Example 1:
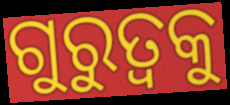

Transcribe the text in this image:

ଗୁରୁତ୍ବକୁ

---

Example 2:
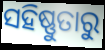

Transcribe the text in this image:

ସହିଷ୍ଣୁତାରୁ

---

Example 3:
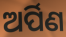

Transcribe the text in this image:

ଅର୍ପିଣ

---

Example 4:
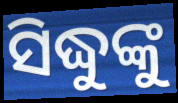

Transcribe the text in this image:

ସିଦ୍ଧୁଙ୍କୁ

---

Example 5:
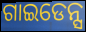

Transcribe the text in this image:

ଗାଇଡେନ୍ସ